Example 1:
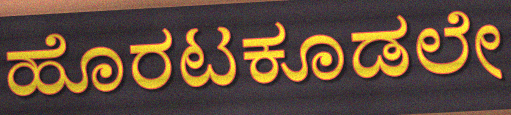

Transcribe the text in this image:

ಹೊರಟಕೂಡಲೇ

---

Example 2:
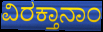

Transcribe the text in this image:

ವಿರಕ್ತಾನಾಂ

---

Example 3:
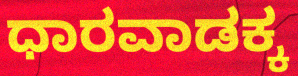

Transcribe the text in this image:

ಧಾರವಾಡಕ್ಕ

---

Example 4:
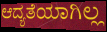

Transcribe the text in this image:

ಆದ್ಯತೆಯಾಗಿಲ್ಲ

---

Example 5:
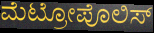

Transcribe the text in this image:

ಮೆಟ್ರೋಪೊಲಿಸ್